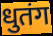
धुतंग